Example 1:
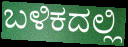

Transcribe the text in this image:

ಬಳಿಕದಲ್ಲಿ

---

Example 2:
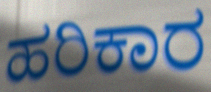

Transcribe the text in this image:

ಹರಿಕಾರ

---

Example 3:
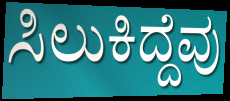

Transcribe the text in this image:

ಸಿಲುಕಿದ್ದೆವು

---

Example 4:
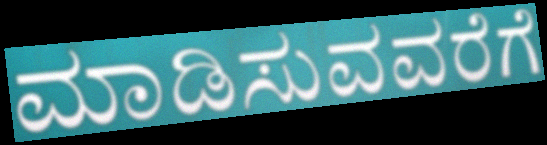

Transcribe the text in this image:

ಮಾಡಿಸುವವರೆಗೆ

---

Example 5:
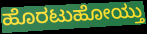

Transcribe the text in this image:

ಹೊರಟುಹೋಯ್ತು